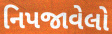
નિપજાવેલો